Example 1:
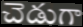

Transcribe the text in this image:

చెడుగా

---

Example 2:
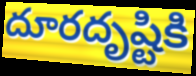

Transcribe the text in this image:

దూరదృష్టికి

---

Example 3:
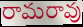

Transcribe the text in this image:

రామరావు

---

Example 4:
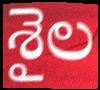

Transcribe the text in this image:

శైల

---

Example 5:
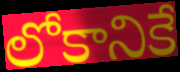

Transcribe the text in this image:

లోకానికే